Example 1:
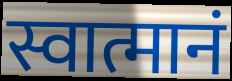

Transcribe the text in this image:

स्वात्मानं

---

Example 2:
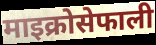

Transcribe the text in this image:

माइक्रोसेफाली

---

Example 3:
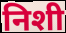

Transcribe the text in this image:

निशी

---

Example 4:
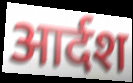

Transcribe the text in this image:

आर्दश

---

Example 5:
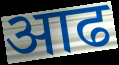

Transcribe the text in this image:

आढ